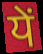
यें